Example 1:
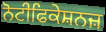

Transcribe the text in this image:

ਨੋਟੀਫਿਕੇਸ਼ਨਜ਼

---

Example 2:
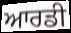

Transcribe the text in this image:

ਆਰਡੀ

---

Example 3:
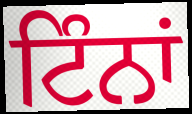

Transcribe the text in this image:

ਟਿੰਨਾਂ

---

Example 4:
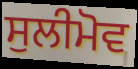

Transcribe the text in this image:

ਸੁਲੀਮੋਵ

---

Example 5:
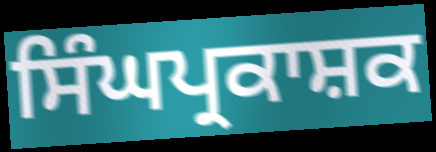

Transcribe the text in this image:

ਸਿੰਘਪ੍ਰਕਾਸ਼ਕ